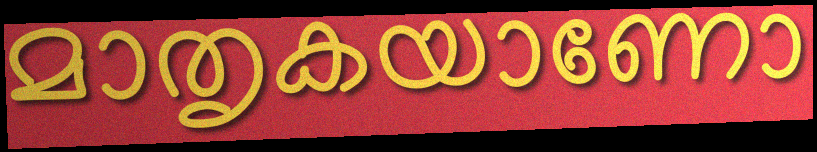
മാതൃകയാണോ